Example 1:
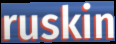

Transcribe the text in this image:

ruskin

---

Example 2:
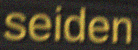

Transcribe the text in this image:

seiden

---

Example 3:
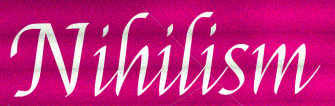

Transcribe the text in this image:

Nihilism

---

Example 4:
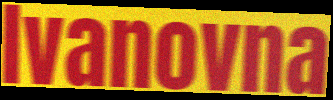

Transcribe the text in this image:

Ivanovna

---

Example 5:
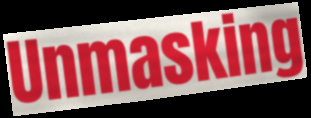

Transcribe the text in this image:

Unmasking